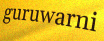
guruwarni